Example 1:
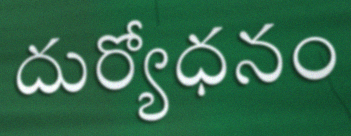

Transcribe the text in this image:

దుర్యోధనం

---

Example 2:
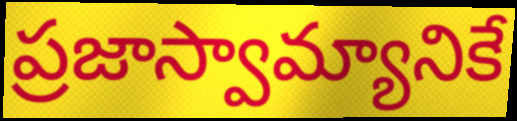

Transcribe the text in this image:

ప్రజాస్వామ్యానికే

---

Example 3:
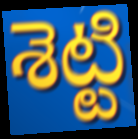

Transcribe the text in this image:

శెట్టి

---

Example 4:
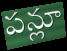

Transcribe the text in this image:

పన్లూ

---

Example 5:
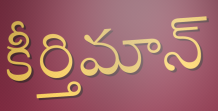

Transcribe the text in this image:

కీర్తిమాన్